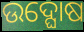
ଉଦ୍ଘୋଷ